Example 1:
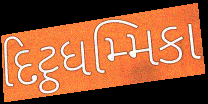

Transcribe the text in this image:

દિટ્ઠધમ્મિકા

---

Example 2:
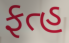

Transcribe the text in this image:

ફત્હ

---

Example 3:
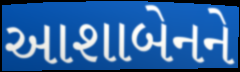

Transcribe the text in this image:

આશાબેનને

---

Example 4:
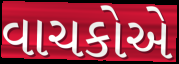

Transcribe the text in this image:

વાચકોએ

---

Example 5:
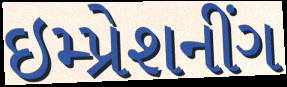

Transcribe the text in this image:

ઇમ્પ્રેશનીંગ